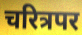
चरित्रपर